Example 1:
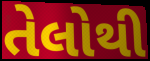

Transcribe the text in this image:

તેલોથી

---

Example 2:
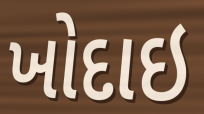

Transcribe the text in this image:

ખોદાઇ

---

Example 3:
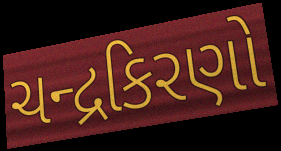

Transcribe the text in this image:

ચન્દ્રકિરણો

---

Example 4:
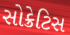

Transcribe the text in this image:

સોક્રેટિસ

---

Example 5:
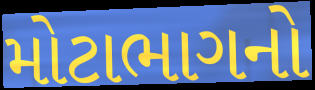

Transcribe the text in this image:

મોટાભાગનો